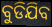
ବୁଡିଯିବ